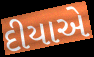
દીયાએ